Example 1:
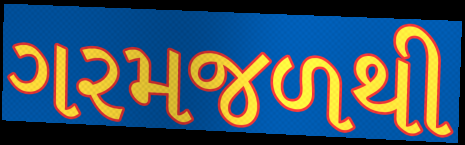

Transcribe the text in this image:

ગરમજળથી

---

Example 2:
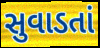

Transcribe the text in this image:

સુવાડતાં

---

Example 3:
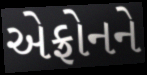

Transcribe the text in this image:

એફ્રોનને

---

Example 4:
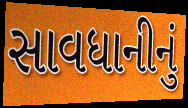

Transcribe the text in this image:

સાવધાનીનું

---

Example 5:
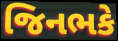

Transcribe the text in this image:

જિનભકે